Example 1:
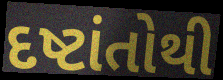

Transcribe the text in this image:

દષ્ટાંતોથી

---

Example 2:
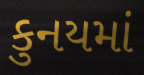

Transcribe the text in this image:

કુનયમાં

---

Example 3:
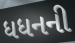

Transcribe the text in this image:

ધધનની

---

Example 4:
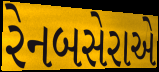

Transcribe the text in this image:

રેનબસેરાએ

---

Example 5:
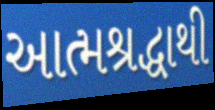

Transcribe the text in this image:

આત્મશ્રદ્ધાથી